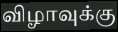
விழாவுக்கு